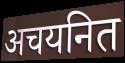
अचयनित